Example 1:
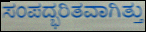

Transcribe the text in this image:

ಸಂಪದ್ಭರಿತವಾಗಿತ್ತು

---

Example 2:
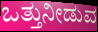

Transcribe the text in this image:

ಒತ್ತುನೀಡುವ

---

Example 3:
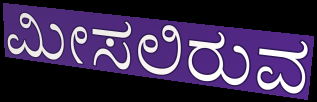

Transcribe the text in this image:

ಮೀಸಲಿರುವ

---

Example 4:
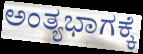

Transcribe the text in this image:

ಅಂತ್ಯಭಾಗಕ್ಕೆ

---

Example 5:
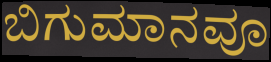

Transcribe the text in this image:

ಬಿಗುಮಾನವೂ